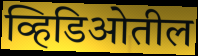
व्हिडिओतील